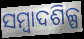
ସମ୍ୱାଦଶିଳ୍ପ